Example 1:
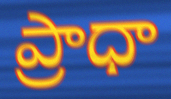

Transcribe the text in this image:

ప్రాధా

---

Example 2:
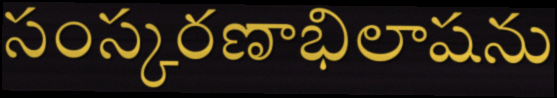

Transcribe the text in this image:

సంస్కరణాభిలాషను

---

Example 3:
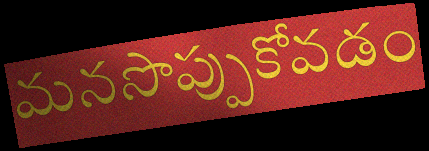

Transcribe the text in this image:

మనసొప్పుకోవడం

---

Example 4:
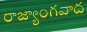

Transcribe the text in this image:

రాజ్యాంగవాద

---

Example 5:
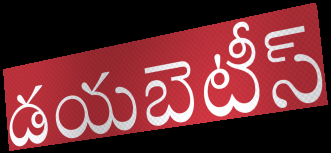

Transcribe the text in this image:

డయబెటీస్